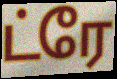
ட்ரே